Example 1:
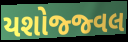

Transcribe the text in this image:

યશોજ્જ્વલ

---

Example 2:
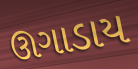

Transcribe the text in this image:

ઊગાડાય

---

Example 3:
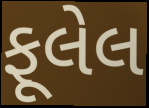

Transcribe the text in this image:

ફૂલેલ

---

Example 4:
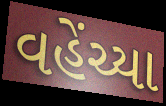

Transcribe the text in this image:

વહેંચ્યા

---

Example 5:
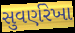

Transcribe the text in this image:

સુવર્ણરેખા